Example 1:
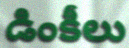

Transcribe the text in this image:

డింకీలు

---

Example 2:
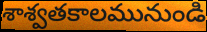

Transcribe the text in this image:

శాశ్వతకాలమునుండి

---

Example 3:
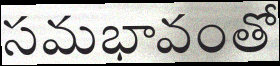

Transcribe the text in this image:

సమభావంతో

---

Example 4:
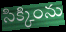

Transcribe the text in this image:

సిక్కింను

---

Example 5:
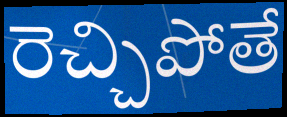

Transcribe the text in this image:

రెచ్చిపోతే